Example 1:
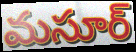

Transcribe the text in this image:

మసూర్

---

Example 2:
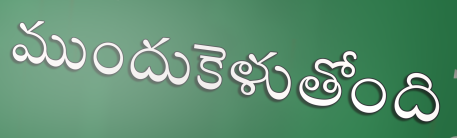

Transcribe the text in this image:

ముందుకెళుతోంది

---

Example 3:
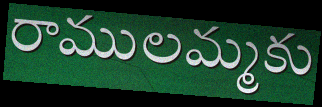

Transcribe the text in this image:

రాములమ్మకు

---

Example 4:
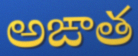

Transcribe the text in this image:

అఙాత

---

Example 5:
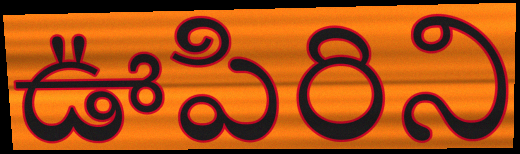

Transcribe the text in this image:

ఊపిరిని